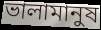
ভালামানুষ